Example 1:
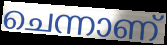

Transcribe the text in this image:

ചെന്നാണ്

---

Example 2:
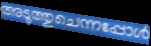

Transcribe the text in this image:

അടുത്തുചെന്നപ്പോൾ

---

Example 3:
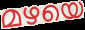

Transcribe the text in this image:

മഴയെ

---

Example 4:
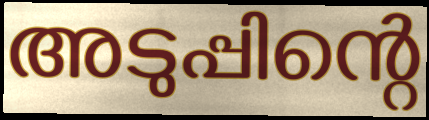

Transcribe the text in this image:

അടുപ്പിന്റെ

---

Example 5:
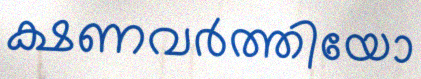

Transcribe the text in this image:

ക്ഷണവർത്തിയോ